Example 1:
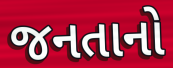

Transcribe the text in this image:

જનતાનો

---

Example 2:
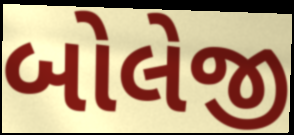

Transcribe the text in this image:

બોલેજી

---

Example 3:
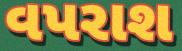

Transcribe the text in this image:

વપરાશ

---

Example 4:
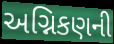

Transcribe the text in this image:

અગ્નિકણની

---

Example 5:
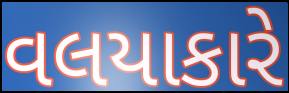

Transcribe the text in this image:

વલયાકારે